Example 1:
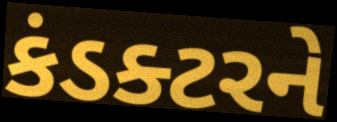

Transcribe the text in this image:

કંડક્ટરને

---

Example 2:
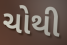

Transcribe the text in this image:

ચોથી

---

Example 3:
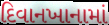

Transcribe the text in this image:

દિવાનખાનામાં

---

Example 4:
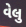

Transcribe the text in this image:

વેલુ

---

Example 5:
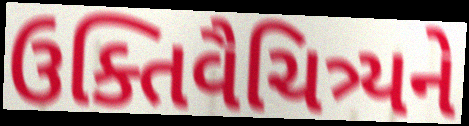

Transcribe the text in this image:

ઉક્તિવૈચિત્ર્યને